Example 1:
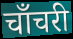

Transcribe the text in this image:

चाँचरी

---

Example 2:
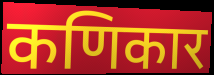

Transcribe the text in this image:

कणिकार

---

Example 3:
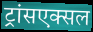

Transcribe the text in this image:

ट्रांसएक्सल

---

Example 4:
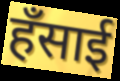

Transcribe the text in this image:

हँसाई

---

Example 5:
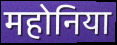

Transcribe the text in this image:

महोनिया